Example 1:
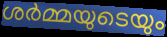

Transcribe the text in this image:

ശർമ്മയുടെയും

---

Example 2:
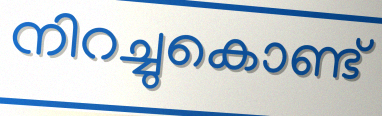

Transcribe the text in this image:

നിറച്ചുകൊണ്ട്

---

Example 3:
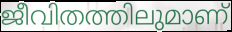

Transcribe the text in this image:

ജീവിതത്തിലുമാണ്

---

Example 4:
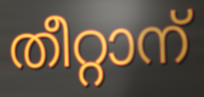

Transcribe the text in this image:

തീറ്റാന്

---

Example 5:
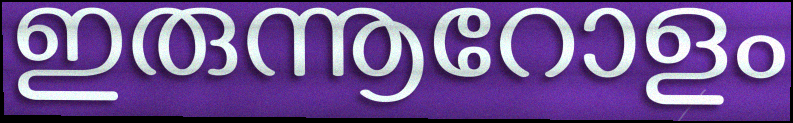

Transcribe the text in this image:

ഇരുന്നൂറോളം